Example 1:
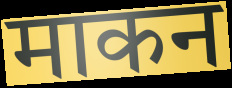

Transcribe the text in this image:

माकन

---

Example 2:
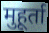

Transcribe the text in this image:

मुहूर्ता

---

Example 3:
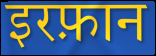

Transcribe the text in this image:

इरफ़ान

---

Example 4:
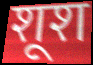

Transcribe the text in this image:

शूश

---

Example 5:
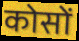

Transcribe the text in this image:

कोसों